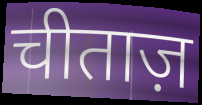
चीताज़